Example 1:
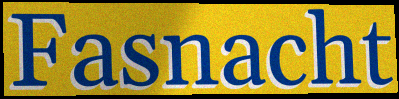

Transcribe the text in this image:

Fasnacht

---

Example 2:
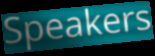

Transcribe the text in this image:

Speakers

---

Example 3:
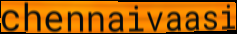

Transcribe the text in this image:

chennaivaasi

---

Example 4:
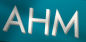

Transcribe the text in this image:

AHM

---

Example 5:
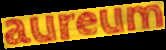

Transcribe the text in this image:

aureum